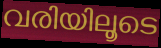
വരിയിലൂടെ